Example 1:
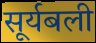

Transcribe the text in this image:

सूर्यबली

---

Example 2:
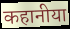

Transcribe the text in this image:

कहानीया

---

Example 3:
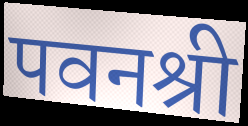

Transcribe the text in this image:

पवनश्री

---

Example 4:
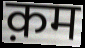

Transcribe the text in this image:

क़म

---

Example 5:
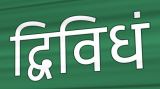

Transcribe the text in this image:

द्विविधं